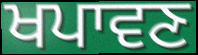
ਖਪਾਵਣ